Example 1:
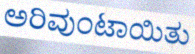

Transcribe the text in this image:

ಅರಿವುಂಟಾಯಿತು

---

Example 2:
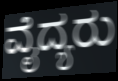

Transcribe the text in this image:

ವೈದ್ಯರು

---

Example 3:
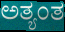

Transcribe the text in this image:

ಅತ್ಯಂತ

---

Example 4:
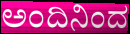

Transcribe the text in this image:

ಅಂದಿನಿಂದ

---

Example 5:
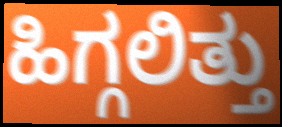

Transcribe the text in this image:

ಹಿಗ್ಗಲಿತ್ತು